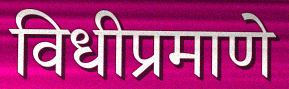
विधीप्रमाणे